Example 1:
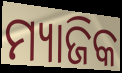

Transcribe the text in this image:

ମ୍ୟାଜିକ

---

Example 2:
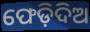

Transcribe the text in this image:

ଫେଡ଼ିଦିଅ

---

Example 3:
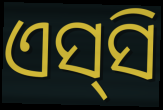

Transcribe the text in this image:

ଏସ୍‍ସି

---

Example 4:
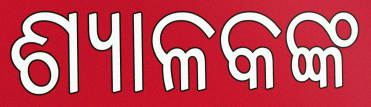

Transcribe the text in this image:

ଶ୍ୟାଳକଙ୍କ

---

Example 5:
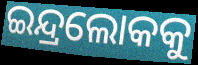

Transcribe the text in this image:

ଇନ୍ଦ୍ରଲୋକକୁ